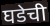
घडेची